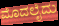
ಮೊದಲೈದು